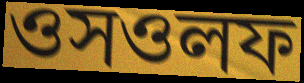
ওসওলফ